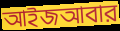
আইজআবার